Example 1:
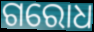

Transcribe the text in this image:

ଗରୋଧ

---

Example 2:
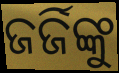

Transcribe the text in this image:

ଜର୍ଜିଙ୍କୁ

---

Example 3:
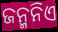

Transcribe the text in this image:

ଜନ୍ମନିଏ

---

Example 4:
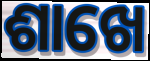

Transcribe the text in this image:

ଶାଖେ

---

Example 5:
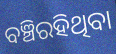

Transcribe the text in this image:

ବଞ୍ଚିରହିଥିବା